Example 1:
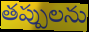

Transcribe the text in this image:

తప్పులను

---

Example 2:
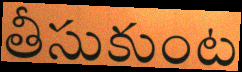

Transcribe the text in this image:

తీసుకుంట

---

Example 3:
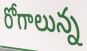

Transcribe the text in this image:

రోగాలున్న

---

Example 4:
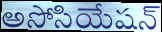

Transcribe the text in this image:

అసోసియేషన్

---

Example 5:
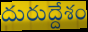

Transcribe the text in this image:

దురుద్దేశం